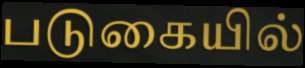
படுகையில்